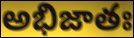
అభిజాతః